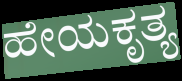
ಹೇಯಕೃತ್ಯ